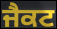
ਜੈਕਟ